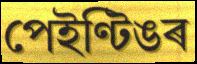
পেইণ্টিঙৰ